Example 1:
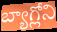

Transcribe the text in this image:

బ్యాగ్లోని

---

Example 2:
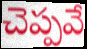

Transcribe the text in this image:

చెప్పవే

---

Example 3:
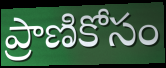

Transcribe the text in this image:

ప్రాణికోసం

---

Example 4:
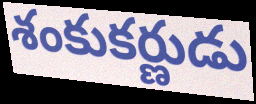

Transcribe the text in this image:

శంకుకర్ణుడు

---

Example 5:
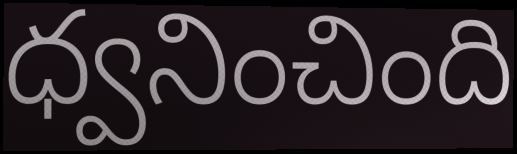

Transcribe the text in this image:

ధ్వనించింది